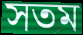
সতম